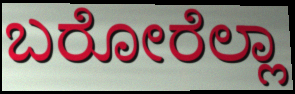
ಬರೋರೆಲ್ಲಾ